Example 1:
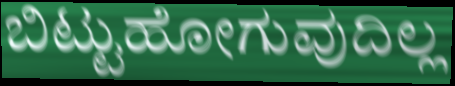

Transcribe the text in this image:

ಬಿಟ್ಟುಹೋಗುವುದಿಲ್ಲ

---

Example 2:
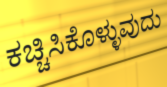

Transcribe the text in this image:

ಕಚ್ಚಿಸಿಕೊಳ್ಳುವುದು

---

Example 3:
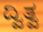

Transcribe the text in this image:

ದ್ವಿತ್ವ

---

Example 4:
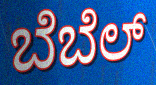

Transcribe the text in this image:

ಬೆಬೆಲ್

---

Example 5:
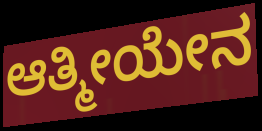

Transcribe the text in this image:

ಆತ್ಮೀಯೇನ